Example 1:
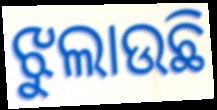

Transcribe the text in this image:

ଝୁଲାଉଛି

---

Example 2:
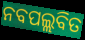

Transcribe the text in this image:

ନବପଲ୍ଲବିତ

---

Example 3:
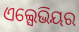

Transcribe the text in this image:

ଏଲ୍ସେଭିୟର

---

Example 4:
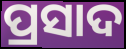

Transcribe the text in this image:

ପ୍ରସାଦ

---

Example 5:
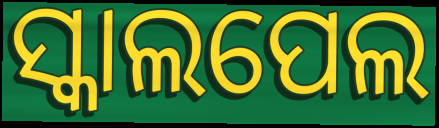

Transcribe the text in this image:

ସ୍କାଲପେଲ